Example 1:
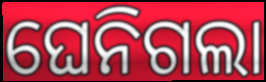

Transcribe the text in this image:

ଘେନିଗଲା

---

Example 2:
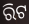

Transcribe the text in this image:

ରିଟ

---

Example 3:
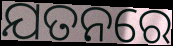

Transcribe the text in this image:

ଯତନରେ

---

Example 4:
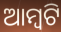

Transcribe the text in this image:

ଆମ୍ୱଟି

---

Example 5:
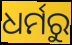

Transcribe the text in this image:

ଧର୍ମରୁ